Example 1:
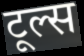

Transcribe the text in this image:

टूल्स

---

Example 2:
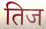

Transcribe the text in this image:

तिज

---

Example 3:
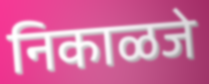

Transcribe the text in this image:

निकाळजे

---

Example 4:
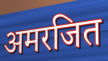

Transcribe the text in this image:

अमरजित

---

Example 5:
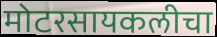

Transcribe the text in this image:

मोटरसायकलीचा